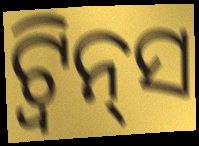
ଟ୍ବିନ୍‌ସ